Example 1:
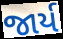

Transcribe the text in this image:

જાર્ય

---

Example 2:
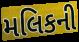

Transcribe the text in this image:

મલિકની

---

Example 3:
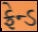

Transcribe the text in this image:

ફ્રેન્ડ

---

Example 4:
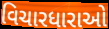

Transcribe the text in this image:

વિચારધારાઓ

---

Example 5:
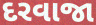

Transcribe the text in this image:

દરવાજા